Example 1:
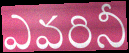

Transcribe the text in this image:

ఎవరినీ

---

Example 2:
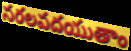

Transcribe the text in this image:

సరలపదయుతాం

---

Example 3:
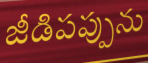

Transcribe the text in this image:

జీడిపప్పును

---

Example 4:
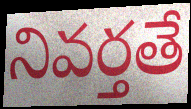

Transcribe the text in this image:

నివర్తతే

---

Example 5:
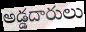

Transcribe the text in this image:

అడ్డదారులు